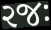
રજઃ